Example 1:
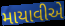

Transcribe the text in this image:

માયાવીએ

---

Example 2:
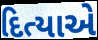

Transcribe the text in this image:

દિત્યાએ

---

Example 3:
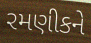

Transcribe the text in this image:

રમણીકને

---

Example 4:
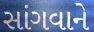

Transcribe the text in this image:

સાંગવાને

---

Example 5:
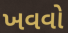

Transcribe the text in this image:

ખવવો